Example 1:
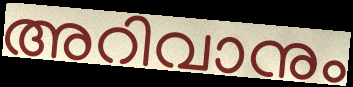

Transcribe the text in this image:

അറിവാനും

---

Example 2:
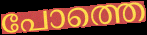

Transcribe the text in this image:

പോത്തെ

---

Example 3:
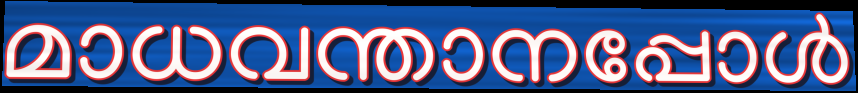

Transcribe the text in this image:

മാധവന്താനപ്പോൾ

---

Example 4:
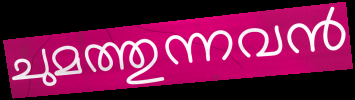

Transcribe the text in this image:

ചുമത്തുന്നവൻ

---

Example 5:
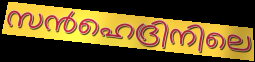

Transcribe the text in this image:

സൻഹെദ്രിനിലെ